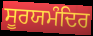
ਸੂਰਯਮੰਦਿਰ